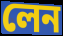
লেন